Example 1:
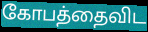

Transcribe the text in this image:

கோபத்தைவிட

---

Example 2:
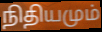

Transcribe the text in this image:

நிதியமும்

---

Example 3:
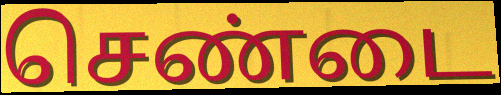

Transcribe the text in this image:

செண்டை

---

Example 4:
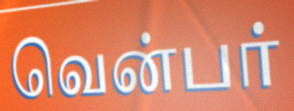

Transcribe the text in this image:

வென்பர்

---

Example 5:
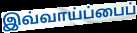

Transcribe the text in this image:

இவ்வாய்ப்பைப்